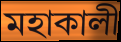
মহাকালী